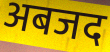
अबजद